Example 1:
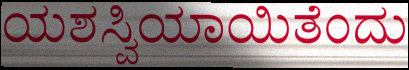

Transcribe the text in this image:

ಯಶಸ್ವಿಯಾಯಿತೆಂದು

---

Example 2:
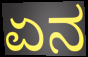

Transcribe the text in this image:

ಏನ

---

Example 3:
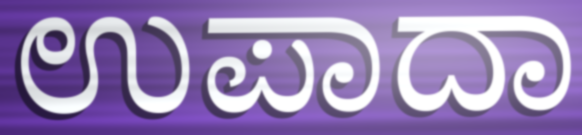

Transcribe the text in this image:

ಉಪಾದಾ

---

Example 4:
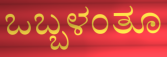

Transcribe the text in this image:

ಒಬ್ಬಳಂತೂ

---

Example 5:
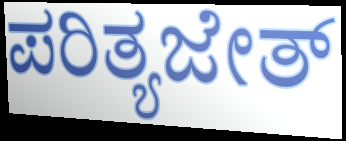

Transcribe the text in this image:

ಪರಿತ್ಯಜೇತ್